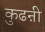
कुढऩी